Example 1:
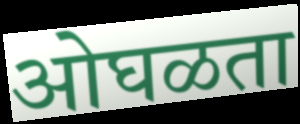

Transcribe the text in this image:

ओघळता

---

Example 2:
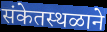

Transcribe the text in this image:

संकेतस्थळाने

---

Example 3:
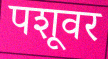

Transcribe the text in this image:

पशूवर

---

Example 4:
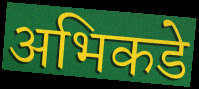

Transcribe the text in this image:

अभिकडे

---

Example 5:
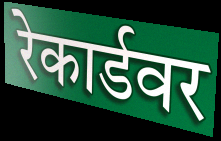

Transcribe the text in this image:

रेकार्डवर